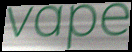
vape